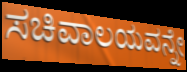
ಸಚಿವಾಲಯವನ್ನೇ